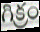
గిక్రం